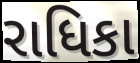
રાધિકા